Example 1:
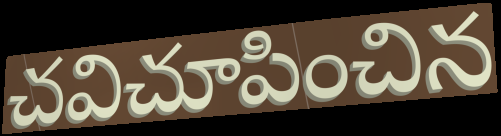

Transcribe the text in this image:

చవిచూపించిన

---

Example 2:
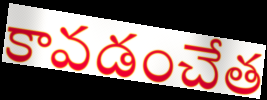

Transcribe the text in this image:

కావడంచేత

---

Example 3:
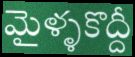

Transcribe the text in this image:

మైళ్ళకొద్దీ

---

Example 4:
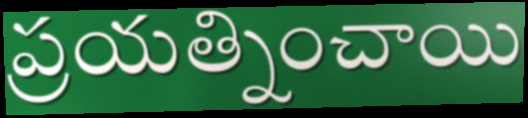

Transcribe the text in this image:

ప్రయత్నించాయి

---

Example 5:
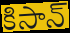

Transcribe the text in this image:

కిసాన్